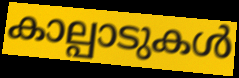
കാല്പാടുകൾ